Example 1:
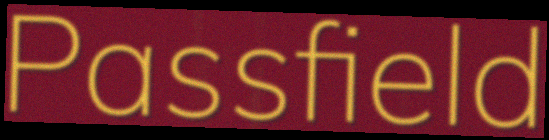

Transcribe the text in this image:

Passfield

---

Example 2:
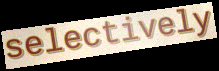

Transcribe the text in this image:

selectively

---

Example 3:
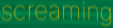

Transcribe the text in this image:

screaming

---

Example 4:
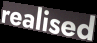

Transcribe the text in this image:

realised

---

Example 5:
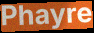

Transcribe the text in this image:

Phayre